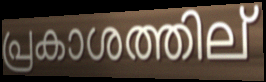
പ്രകാശത്തില്